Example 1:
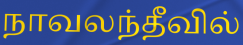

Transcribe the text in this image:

நாவலந்தீவில்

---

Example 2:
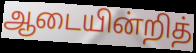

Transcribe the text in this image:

ஆடையின்றித்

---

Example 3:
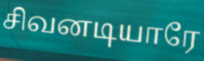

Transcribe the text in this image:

சிவனடியாரே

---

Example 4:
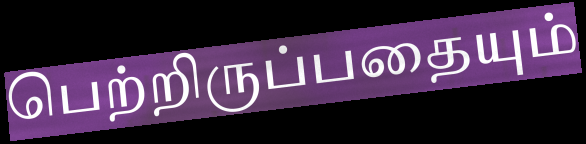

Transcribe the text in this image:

பெற்றிருப்பதையும்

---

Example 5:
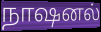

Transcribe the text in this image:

நாஷனல்